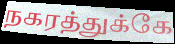
நகரத்துக்கே